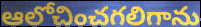
ఆలోచించగలిగాను